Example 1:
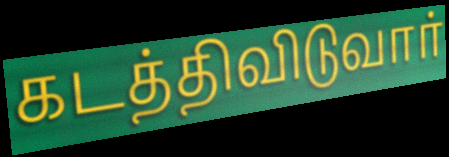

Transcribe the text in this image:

கடத்திவிடுவார்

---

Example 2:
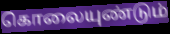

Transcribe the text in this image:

கொலையுண்டும்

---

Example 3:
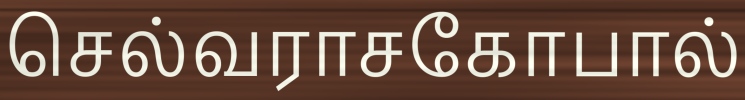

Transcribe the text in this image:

செல்வராசகோபால்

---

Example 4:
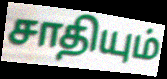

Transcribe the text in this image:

சாதியும்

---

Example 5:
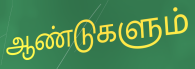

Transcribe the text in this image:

ஆண்டுகளும்